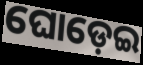
ଘୋଡ଼େଇ